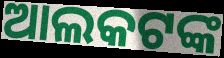
ଆଲକଟଙ୍କ